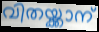
വിതയ്ക്കാന്